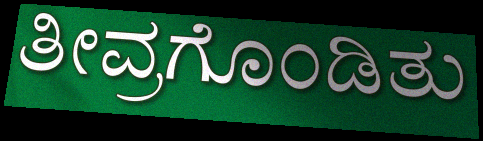
ತೀವ್ರಗೊಂಡಿತು